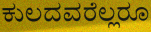
ಕುಲದವರೆಲ್ಲರೂ